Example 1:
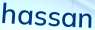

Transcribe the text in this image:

hassan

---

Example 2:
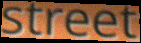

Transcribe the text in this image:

street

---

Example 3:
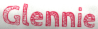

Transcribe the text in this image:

Glennie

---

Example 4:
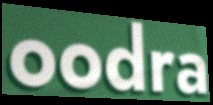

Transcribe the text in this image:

oodra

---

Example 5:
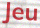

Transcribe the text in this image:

Jeu